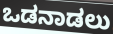
ಒಡನಾಡಲು